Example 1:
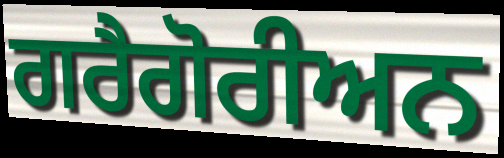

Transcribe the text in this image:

ਗਰੈਗੋਰੀਅਨ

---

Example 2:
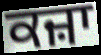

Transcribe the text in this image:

ਕਜ਼ਾ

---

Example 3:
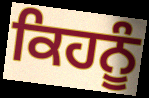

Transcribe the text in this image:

ਕਿਹਨੂੰ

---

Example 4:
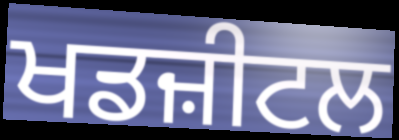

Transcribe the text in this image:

ਖਡਜ਼ੀਟਲ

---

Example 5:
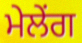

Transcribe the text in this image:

ਮੇਲੇਂਗ